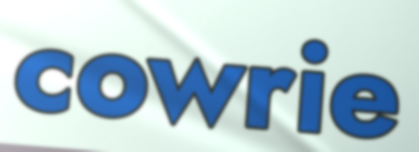
cowrie